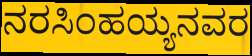
ನರಸಿಂಹಯ್ಯನವರ